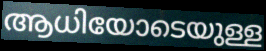
ആധിയോടെയുള്ള